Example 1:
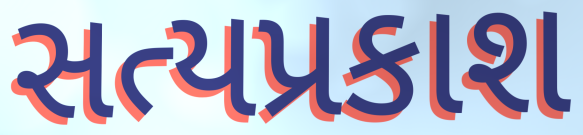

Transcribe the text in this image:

સત્યપ્રકાશ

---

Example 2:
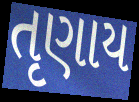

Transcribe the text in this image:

તૃણાય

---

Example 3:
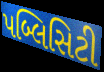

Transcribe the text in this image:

પબ્લિસિટી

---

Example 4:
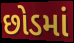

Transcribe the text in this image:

છોડમાં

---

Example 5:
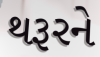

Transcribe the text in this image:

થરૂરને